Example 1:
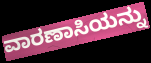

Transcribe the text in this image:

ವಾರಣಾಸಿಯನ್ನು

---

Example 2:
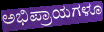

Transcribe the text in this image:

ಅಭಿಪ್ರಾಯಗಳೂ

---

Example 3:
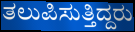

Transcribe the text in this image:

ತಲುಪಿಸುತ್ತಿದ್ದರು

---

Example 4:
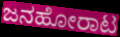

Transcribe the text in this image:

ಜನಹೋರಾಟ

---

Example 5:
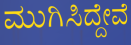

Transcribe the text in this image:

ಮುಗಿಸಿದ್ದೇವೆ